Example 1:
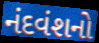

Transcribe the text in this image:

નંદવંશનો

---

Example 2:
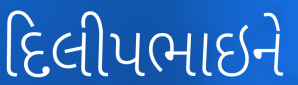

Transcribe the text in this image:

દિલીપભાઇને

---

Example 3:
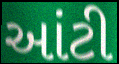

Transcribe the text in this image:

આંટી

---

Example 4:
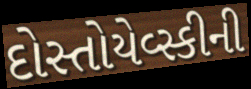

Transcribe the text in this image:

દોસ્તોયેવ્સ્કીની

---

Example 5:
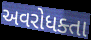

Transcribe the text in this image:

અવરોધક્તા